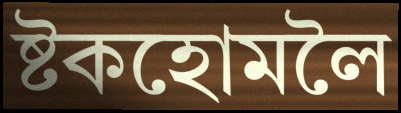
ষ্টকহোমলৈ